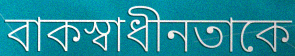
বাকস্বাধীনতাকে